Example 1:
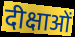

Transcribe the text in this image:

दीक्षाओं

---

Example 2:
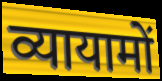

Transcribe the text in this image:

व्यायामों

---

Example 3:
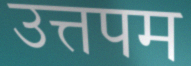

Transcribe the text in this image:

उत्तपम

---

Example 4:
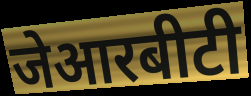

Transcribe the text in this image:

जेआरबीटी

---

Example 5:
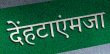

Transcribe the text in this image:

देंहटाएंमजा